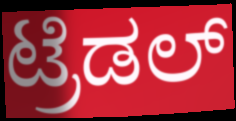
ಟ್ರೆಡಲ್